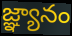
జ్ఞ్యానం